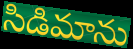
సిడిమాను